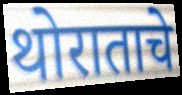
थोराताचे